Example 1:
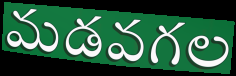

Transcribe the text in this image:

మడవగల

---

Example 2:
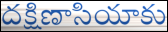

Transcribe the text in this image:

దక్షిణాసియాకు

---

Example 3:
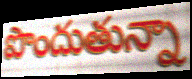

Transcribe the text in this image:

పొందుతున్నా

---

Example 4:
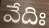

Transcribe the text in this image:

వేదిః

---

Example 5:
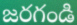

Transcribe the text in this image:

జరగండి